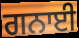
ਗਨਾਈ